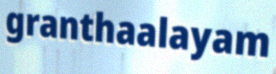
granthaalayam